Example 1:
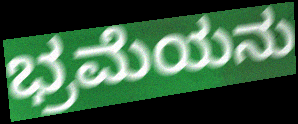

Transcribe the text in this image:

ಭ್ರಮೆಯನು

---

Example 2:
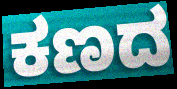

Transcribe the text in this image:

ಕಣದ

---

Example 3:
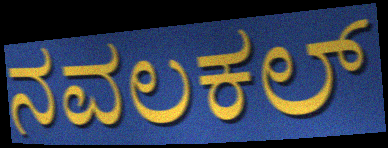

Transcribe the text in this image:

ನವಲಕಲ್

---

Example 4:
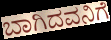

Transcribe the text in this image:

ಬಾಗಿದವನಿಗೆ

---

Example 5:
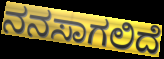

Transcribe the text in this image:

ನನಸಾಗಲಿದೆ